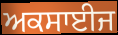
ਅਕਸਾਈਜ